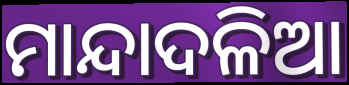
ମାନ୍ଦାଦଳିଆ